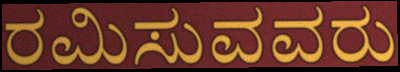
ರಮಿಸುವವರು